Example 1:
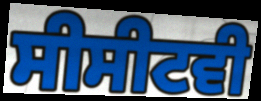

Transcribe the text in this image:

ਸੀਸੀਟਵੀ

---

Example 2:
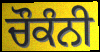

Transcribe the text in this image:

ਚੌਕੰਨੀ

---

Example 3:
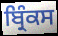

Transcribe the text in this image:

ਬ੍ਰਿੰਕਸ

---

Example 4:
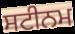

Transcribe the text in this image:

ਸਟੀਨਮ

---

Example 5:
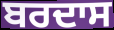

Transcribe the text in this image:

ਬਰਦਾਸ